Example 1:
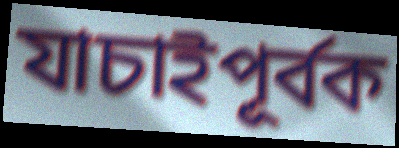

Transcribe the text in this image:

যাচাইপূর্বক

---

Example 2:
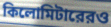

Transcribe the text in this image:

কিলোমিটারেরও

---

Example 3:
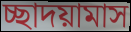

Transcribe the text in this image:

চ্ছাদয়ামাস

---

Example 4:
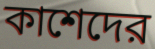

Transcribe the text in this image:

কাশেদের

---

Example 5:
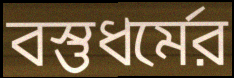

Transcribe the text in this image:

বস্তুধর্মের